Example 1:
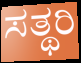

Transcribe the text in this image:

ಸತ್ಥರಿ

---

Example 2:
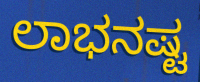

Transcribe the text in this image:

ಲಾಭನಷ್ಟ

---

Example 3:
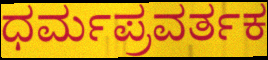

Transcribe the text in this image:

ಧರ್ಮಪ್ರವರ್ತಕ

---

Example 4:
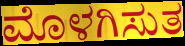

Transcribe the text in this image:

ಮೊಳಗಿಸುತ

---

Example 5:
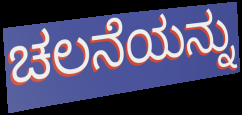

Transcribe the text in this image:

ಚಲನೆಯನ್ನು